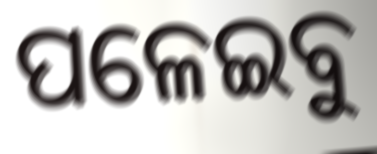
ପଳେଇବୁ